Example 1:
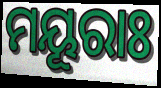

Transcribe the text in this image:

ମୟୂରାଃ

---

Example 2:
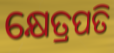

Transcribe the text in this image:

କ୍ଷେତ୍ରପତି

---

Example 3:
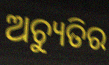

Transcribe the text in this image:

ଅଚ୍ୟୁତିର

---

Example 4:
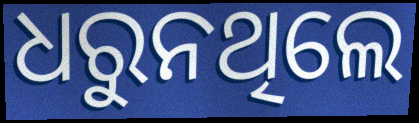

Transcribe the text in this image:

ଧରୁନଥିଲେ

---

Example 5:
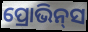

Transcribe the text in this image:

ପ୍ରୋଭିନ୍‌ସ